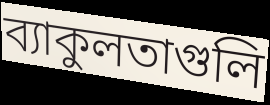
ব্যাকুলতাগুলি